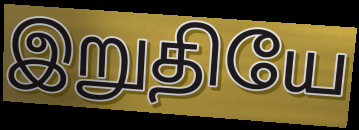
இறுதியே